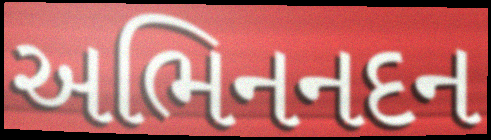
અભિનનદન